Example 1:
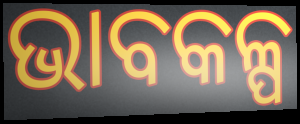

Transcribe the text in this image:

ଭାବକଳ୍ପ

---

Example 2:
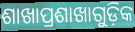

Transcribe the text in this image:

ଶାଖାପ୍ରଶାଖାଗୁଡ଼ିକ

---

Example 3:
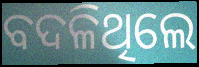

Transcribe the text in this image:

ବଦଳିଥିଲେ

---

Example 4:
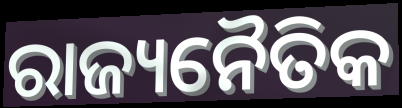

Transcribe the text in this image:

ରାଜ୍ୟନୈତିକ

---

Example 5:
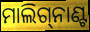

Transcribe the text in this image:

ମାଲିଗ୍‌ନାଣ୍ଟ